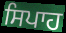
ਸਿਪਾਹ